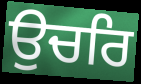
ਉਚਰਿ